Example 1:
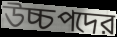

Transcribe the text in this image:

উচ্চপদের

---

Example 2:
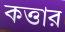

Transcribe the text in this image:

কত্তার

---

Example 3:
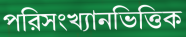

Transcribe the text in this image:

পরিসংখ্যানভিত্তিক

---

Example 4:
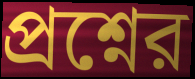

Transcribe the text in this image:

প্রশ্নের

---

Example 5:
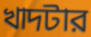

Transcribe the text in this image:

খাদটার